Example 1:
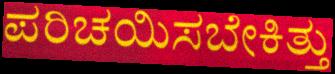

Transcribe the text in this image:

ಪರಿಚಯಿಸಬೇಕಿತ್ತು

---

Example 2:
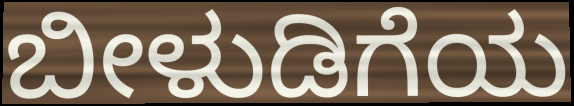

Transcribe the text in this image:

ಬೀಳುಡಿಗೆಯ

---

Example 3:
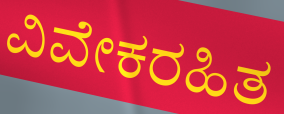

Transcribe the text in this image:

ವಿವೇಕರಹಿತ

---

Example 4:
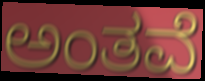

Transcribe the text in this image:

ಅಂತವೆ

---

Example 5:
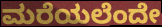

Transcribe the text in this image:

ಮರೆಯಲೆಂದೇ